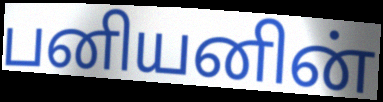
பனியனின்